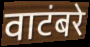
वाटंबरे